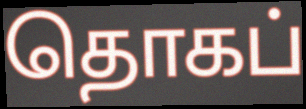
தொகப்